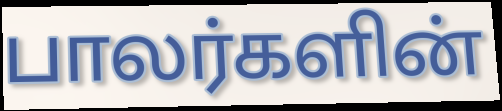
பாலர்களின்